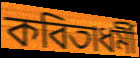
কবিতাধর্মী